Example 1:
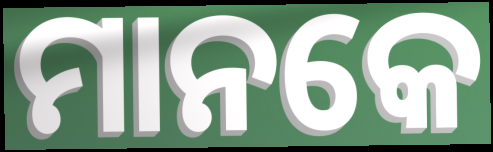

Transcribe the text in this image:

ମାନକେ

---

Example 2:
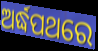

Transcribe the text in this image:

ଅର୍ଦ୍ଧପଥରେ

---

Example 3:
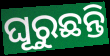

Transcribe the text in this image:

ଘୂରୁଛନ୍ତି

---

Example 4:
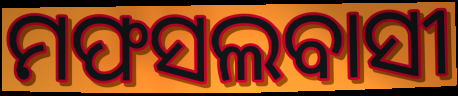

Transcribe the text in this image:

ମଫସଲବାସୀ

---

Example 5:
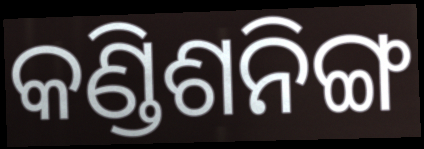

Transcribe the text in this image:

କଣ୍ଡିଶନିଙ୍ଗ